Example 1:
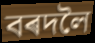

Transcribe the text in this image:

বৰদলৈ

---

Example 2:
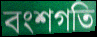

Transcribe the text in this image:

বংশগতি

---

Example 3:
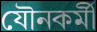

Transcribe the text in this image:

যৌনকৰ্মী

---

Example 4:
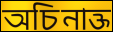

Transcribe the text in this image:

অচিনাক্ত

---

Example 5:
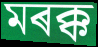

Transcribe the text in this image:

মৰক্ক